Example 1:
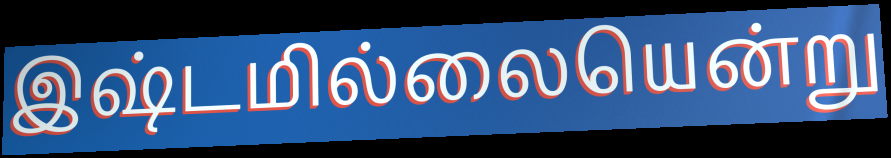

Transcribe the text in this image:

இஷ்டமில்லையென்று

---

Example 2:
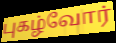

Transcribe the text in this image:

புகழ்வோர்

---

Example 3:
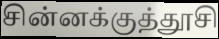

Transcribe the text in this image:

சின்னக்குத்தூசி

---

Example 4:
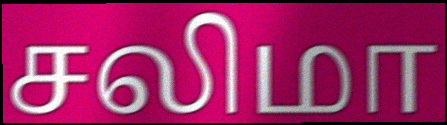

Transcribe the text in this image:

சலிமா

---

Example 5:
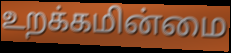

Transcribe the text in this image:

உறக்கமின்மை